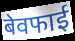
बेवफाई